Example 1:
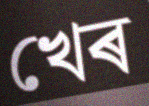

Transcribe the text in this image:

খেৰ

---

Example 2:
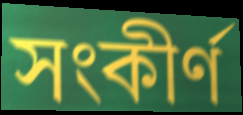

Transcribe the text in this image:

সংকীৰ্ণ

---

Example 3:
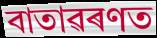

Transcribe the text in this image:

বাতাৱৰণত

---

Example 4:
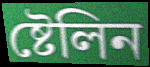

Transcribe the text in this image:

ষ্টেলিন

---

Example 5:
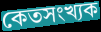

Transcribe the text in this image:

কেতসংখ্যক